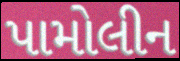
પામોલીન